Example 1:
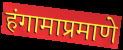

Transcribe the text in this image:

हंगामाप्रमाणे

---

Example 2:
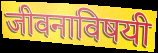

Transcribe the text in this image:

जीवनाविषयी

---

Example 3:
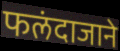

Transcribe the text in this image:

फलंदाजाने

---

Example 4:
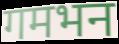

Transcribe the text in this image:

गमभन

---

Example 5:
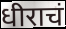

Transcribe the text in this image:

धीराचं